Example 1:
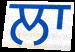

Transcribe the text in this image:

ਲਾ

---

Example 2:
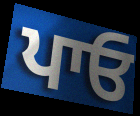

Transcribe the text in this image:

ਪਾਓ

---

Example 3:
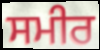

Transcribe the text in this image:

ਸਮੀਰ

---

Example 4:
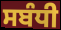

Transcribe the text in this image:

ਸਬੰਧੀ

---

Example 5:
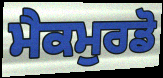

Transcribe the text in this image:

ਮੈਕਮੁਰਡੋ